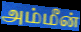
அம்மீன்